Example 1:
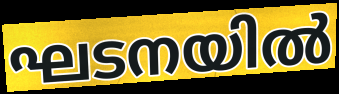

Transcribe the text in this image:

ഘടനയിൽ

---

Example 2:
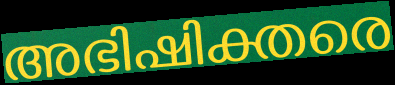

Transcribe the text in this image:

അഭിഷിക്തരെ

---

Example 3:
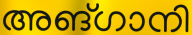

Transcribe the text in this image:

അങ്ഗാനി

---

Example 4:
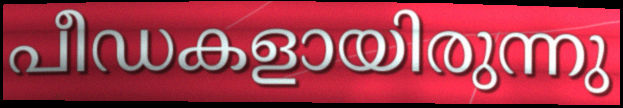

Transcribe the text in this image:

പീഡകളായിരുന്നു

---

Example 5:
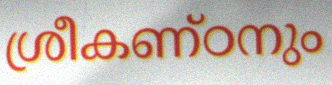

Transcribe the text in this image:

ശ്രീകണ്ഠനും